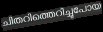
ചിതറിത്തെറിച്ചുപോയ